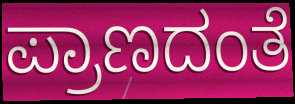
ಪ್ರಾಣದಂತೆ